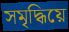
সমৃদ্ধিয়ে